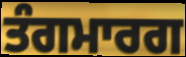
ਤੰਗਮਾਰਗ